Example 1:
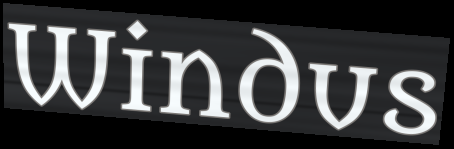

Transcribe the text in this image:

Windus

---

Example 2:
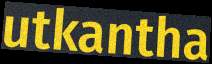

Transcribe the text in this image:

utkantha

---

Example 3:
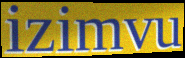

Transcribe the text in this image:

izimvu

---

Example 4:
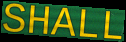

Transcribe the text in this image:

SHALL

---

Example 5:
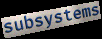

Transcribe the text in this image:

subsystems